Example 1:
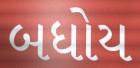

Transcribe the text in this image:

બધોય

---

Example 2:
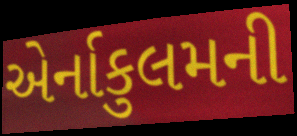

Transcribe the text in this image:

એર્નાકુલમની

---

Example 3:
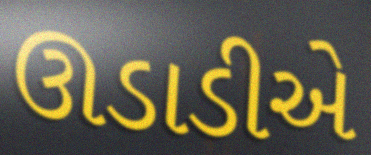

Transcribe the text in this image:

ઊડાડીએ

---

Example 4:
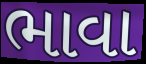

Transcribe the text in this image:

ભાવા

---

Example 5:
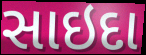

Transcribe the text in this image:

સાઇદા